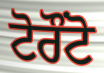
ਟੋਰੌੰਟੋ